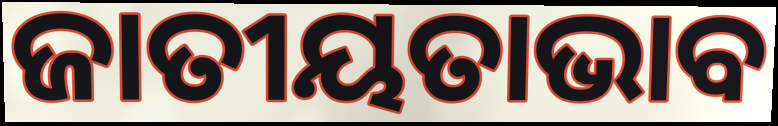
ଜାତୀୟତାଭାବ